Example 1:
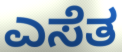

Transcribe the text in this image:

ಎಸೆತ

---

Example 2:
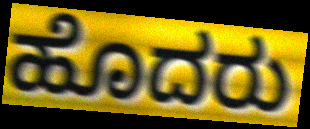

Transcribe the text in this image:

ಹೊದರು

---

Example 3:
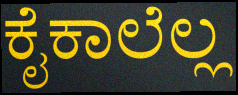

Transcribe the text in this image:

ಕೈಕಾಲೆಲ್ಲ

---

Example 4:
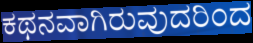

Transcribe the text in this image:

ಕಥನವಾಗಿರುವುದರಿಂದ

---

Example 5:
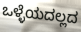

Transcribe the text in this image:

ಒಳ್ಳೆಯದಲ್ಲದ